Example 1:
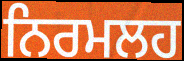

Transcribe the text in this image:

ਨਿਰਮਲਹ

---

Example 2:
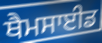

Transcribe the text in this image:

ਥੈਮਸਾਈਡ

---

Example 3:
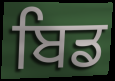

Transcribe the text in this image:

ਬਿਡ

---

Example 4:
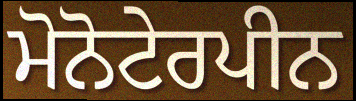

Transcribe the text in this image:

ਮੋਨੋਟੇਰਪੀਨ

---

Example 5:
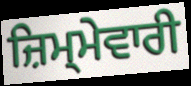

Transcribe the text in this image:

ਜ਼ਿਮ੍ਮੇਵਾਰੀ